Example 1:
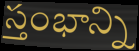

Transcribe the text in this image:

స్తంభాన్ని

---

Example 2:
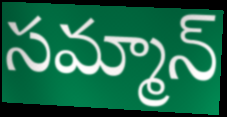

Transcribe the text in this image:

సమ్మాన్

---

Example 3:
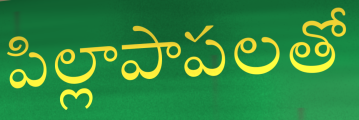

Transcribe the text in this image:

పిల్లాపాపలతో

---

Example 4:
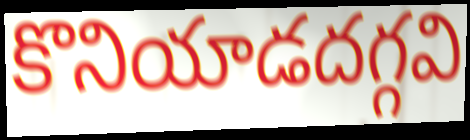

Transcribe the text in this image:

కొనియాడదగ్గవి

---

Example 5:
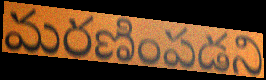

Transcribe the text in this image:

మరణింపడని